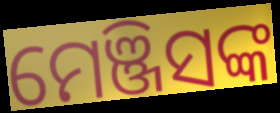
ମେଞ୍ଜିସଙ୍କ